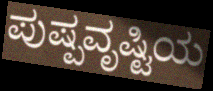
ಪುಷ್ಪವೃಷ್ಟಿಯ